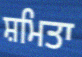
ਸ਼ਮਿਤਾ